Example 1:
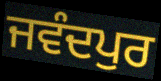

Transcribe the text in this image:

ਜਵੰਦਪੁਰ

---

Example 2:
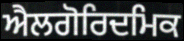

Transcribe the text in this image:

ਐਲਗੋਰਿਦਮਿਕ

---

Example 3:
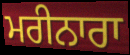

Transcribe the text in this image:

ਮਰੀਨਾਰਾ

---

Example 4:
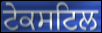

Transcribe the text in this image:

ਟੇਕਸਟਿਲ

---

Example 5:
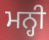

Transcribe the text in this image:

ਮਨ੍ਹੀ